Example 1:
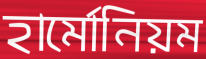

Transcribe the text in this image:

হার্মোনিয়ম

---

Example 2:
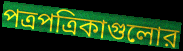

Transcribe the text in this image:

পত্রপত্রিকাগুলোর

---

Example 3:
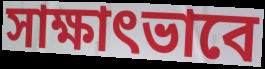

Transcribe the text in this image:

সাক্ষাৎভাবে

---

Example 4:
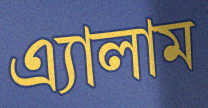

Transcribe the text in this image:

এ্যালাম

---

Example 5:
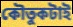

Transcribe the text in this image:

কৌতুকটাই